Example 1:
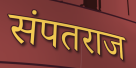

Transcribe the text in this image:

संपतराज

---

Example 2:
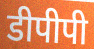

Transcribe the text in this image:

डीपीपी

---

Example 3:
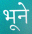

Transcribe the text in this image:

भूने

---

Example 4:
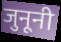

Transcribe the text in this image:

जुनूनी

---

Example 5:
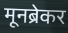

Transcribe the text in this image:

मूनब्रेकर